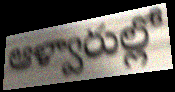
ఆళ్వారుల్లో